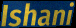
Ishani